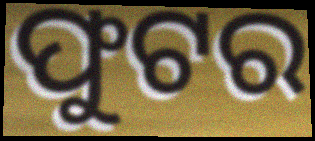
ଫୁଟର